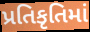
પ્રતિકૃતિમાં